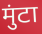
मुंटा